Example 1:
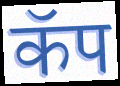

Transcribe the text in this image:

कॅप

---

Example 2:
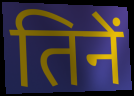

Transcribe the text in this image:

तिनें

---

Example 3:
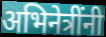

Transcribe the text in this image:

अभिनेत्रींनी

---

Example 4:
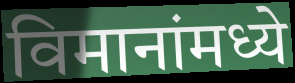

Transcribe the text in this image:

विमानांमध्ये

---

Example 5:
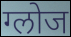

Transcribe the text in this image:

ग्लोज